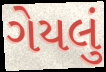
ગેયલું